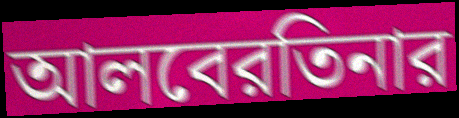
আলবেরতিনার